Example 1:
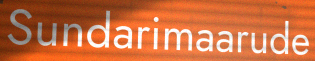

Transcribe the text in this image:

Sundarimaarude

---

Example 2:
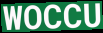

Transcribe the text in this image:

WOCCU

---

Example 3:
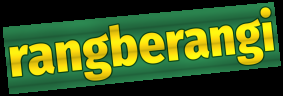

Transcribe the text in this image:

rangberangi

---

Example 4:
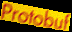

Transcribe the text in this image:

Protobuf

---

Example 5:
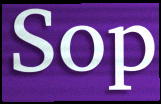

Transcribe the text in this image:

Sop